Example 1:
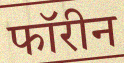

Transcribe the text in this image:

फॉरीन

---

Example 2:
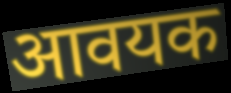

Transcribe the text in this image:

आवयक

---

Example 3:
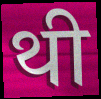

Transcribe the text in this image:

थी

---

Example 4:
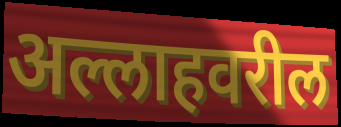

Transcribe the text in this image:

अल्लाहवरील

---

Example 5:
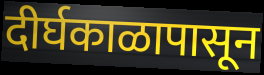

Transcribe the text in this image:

दीर्घकाळापासून